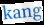
kang